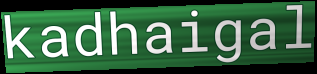
kadhaigal